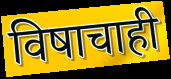
विषाचाही